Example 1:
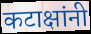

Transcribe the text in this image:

कटाक्षांनी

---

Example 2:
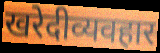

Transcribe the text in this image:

खरेदीव्यवहार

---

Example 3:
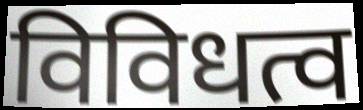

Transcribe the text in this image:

विविधत्व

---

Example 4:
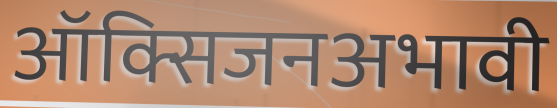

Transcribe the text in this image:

ऑक्सिजनअभावी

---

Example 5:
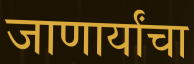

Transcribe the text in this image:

जाणार्यांचा